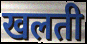
खलती